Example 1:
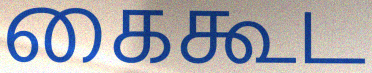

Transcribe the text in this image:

கைகூட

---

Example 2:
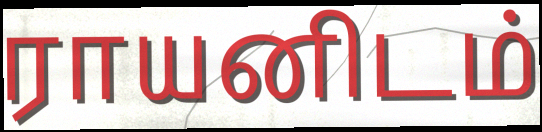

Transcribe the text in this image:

ராயனிடம்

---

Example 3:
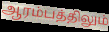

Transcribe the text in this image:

ஆரம்பத்திலும்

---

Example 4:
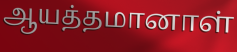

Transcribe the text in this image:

ஆயத்தமானாள்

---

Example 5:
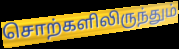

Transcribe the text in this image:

சொற்களிலிருந்தும்